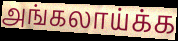
அங்கலாய்க்க